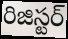
రిజిస్టర్